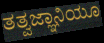
ತತ್ವಜ್ಞಾನಿಯೂ